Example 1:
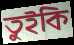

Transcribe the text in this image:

তুইকি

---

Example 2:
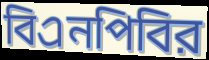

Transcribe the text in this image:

বিএনপিবির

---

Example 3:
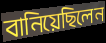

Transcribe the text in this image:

বানিয়েছিলেন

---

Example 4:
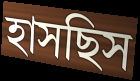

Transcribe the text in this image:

হাসছিস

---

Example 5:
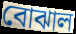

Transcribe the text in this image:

বোঝাল